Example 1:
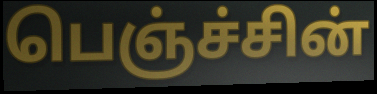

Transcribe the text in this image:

பெஞ்ச்சின்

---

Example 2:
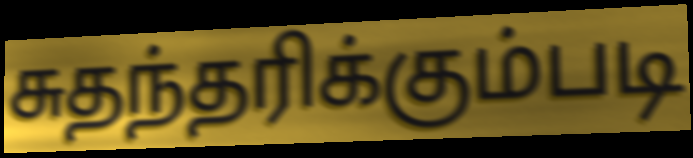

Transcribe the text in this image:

சுதந்தரிக்கும்படி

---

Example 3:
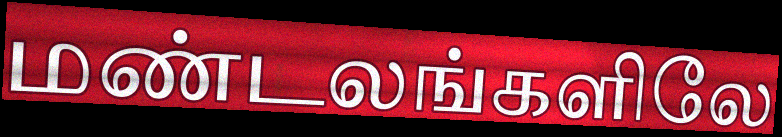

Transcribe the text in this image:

மண்டலங்களிலே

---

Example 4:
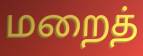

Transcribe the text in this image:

மறைத்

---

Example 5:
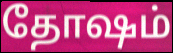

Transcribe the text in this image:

தோஷம்